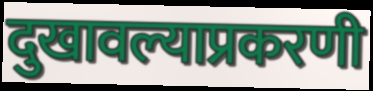
दुखावल्याप्रकरणी